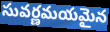
సువర్ణమయమైన